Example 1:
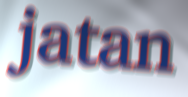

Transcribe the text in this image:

jatan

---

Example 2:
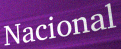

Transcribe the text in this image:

Nacional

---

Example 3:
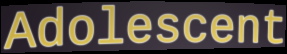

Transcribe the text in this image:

Adolescent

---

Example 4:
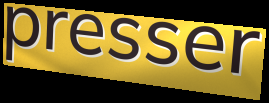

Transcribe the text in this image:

presser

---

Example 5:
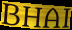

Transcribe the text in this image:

BHAI